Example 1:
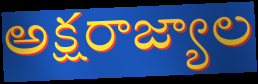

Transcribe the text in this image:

అక్షరాజ్యాల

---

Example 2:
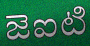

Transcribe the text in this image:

జెఐటి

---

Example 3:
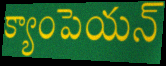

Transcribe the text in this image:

క్యాంపెయన్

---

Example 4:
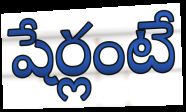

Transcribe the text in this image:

షేర్లంటే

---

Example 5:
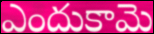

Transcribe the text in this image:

ఎందుకామె